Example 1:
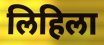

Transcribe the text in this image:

लिहिला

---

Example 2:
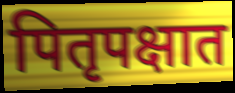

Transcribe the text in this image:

पितृपक्षात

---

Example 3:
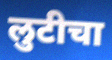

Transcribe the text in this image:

लुटीचा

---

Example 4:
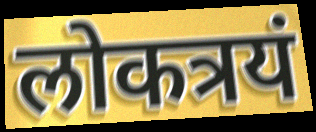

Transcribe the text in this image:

लोकत्रयं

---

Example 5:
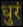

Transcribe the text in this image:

धुरं